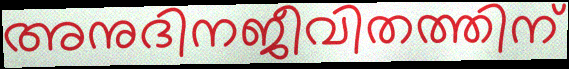
അനുദിനജീവിതത്തിന്